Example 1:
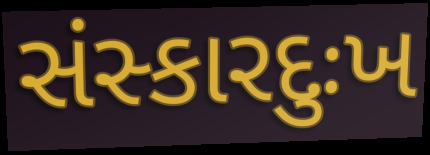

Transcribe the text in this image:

સંસ્કારદુઃખ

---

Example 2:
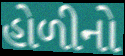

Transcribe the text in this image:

હોળીનો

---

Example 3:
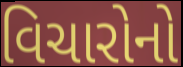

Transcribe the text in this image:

વિચારોનો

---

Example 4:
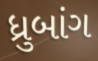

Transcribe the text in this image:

ધ્રુબાંગ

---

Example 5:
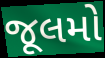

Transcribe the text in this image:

જૂલમો